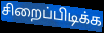
சிறைப்பிடிக்க